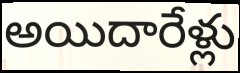
అయిదారేళ్లు